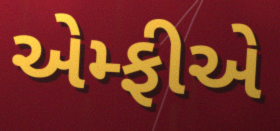
એમ્ફીએ